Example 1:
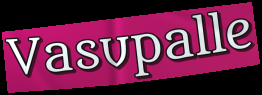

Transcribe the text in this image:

Vasupalle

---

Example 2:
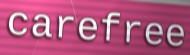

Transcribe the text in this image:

carefree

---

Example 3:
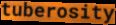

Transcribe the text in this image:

tuberosity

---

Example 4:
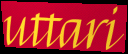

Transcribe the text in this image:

uttari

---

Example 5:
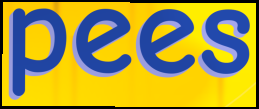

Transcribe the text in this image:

pees